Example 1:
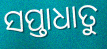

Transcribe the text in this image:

ସପ୍ତାଧାତୁ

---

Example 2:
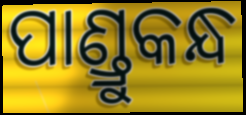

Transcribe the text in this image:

ପାଣ୍ଡ୍ରୁକନ୍ଧ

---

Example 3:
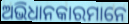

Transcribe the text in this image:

ଅଭିଧାନକାରମାନେ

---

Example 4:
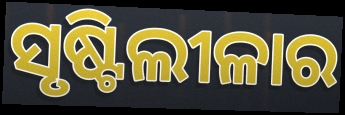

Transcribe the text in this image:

ସୃଷ୍ଟିଲୀଳାର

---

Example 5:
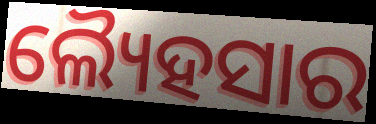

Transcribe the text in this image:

ଲ୍ୟୈହସାର